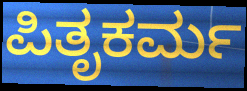
ಪಿತೃಕರ್ಮ